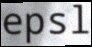
epsl